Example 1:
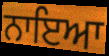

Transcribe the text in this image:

ਨਾਇਆ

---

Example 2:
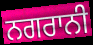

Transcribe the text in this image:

ਨਗਰਾਨੀ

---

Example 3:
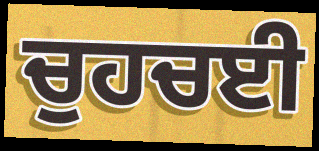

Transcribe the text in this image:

ਚੁਹਚਈ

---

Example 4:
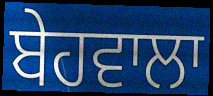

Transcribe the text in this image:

ਬੇਹਵਾਲਾ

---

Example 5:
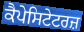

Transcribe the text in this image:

ਕੈਪੇਸਿਟੇਟਰਜ਼